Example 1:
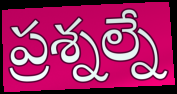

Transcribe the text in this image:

ప్రశ్నల్నే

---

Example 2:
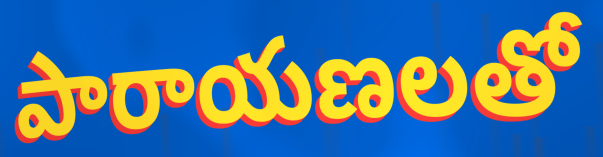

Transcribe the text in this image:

పారాయణలతో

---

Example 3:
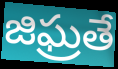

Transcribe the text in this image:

జిఘ్రతే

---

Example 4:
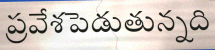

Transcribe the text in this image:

ప్రవేశపెడుతున్నది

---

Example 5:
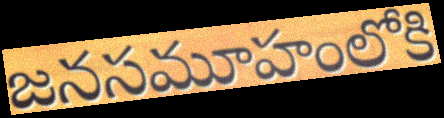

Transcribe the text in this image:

జనసమూహంలోకి